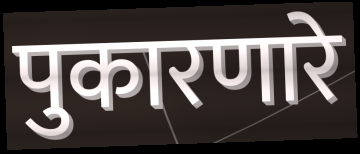
पुकारणारे